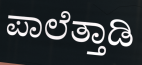
ಪಾಲೆತ್ತಾಡಿ